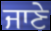
ਜਾਣੇ